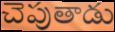
చెపుతాడు